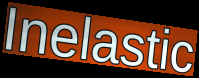
Inelastic